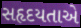
સહૃદયતાએ